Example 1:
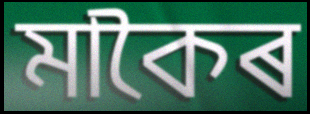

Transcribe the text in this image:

মাকৈৰ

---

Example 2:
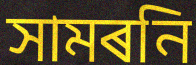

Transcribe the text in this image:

সামৰনি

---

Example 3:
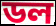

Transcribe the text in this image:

ডল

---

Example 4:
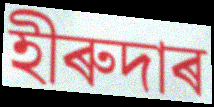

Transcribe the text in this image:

হীৰুদাৰ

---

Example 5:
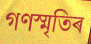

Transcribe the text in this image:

গণস্মৃতিৰ